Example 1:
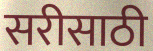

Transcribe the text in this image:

सरीसाठी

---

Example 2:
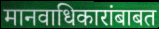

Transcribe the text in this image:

मानवाधिकारांबाबत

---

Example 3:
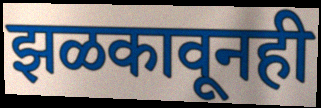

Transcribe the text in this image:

झळकावूनही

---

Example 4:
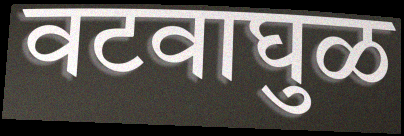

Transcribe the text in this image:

वटवाघुळ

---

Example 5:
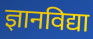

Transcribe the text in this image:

ज्ञानविद्या